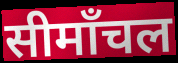
सीमाँचल